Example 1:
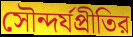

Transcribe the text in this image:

সৌন্দর্যপ্রীতির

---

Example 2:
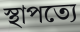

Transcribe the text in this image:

স্থাপত্যে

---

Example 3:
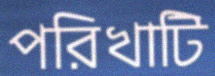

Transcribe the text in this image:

পরিখাটি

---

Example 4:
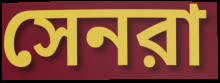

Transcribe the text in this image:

সেনরা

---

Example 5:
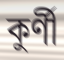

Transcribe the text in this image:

কুর্ণী